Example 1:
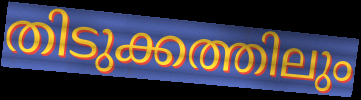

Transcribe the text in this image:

തിടുക്കത്തിലും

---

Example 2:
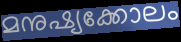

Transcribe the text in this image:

മനുഷ്യക്കോലം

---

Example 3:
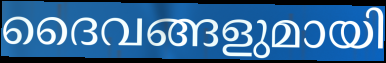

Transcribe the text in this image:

ദൈവങ്ങളുമായി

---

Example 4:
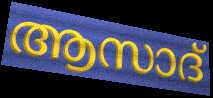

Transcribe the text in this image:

ആസാദ്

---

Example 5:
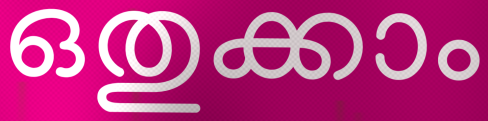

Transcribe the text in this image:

ഒതുക്കാം